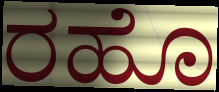
ರಹೊ